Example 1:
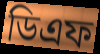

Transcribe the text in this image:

ডিএফ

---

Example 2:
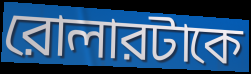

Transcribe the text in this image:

রোলারটাকে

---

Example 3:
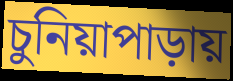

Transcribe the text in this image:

চুনিয়াপাড়ায়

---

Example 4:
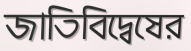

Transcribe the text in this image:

জাতিবিদ্বেষের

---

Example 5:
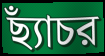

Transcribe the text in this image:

ছ্যাঁচর